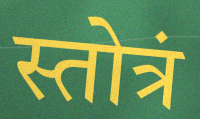
स्तोत्रं